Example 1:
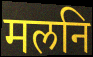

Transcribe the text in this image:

मलनि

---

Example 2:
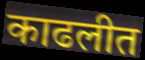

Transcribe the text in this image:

काढलीत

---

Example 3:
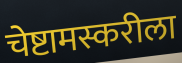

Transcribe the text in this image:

चेष्टामस्करीला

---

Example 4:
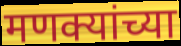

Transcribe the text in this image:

मणक्यांच्या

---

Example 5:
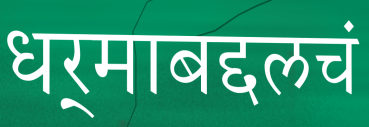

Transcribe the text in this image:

धर्माबद्दलचं